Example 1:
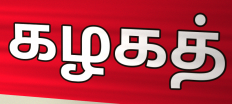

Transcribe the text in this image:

கழகத்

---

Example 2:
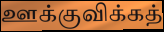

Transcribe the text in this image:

ஊக்குவிக்கத்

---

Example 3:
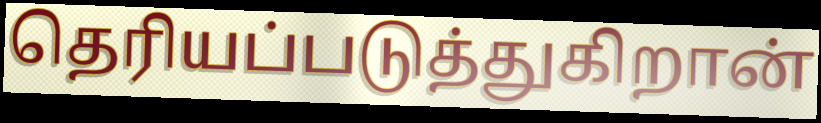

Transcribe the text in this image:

தெரியப்படுத்துகிறான்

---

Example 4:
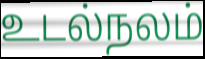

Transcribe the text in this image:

உடல்நலம்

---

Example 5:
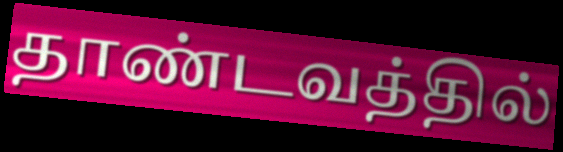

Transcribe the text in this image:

தாண்டவத்தில்